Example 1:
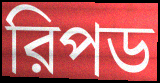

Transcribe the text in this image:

রিপড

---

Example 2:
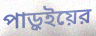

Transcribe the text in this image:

পাড়ুইয়ের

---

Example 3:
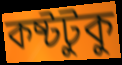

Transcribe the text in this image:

কষ্টটুকু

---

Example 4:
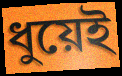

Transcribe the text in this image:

ধুয়েই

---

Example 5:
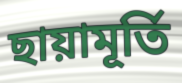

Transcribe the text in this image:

ছায়ামূর্তি